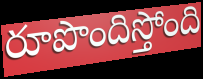
రూపొందిస్తోంది